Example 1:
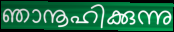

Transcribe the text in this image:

ഞാനൂഹിക്കുന്നു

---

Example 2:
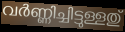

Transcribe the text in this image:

വർണ്ണിച്ചിട്ടുള്ളതു്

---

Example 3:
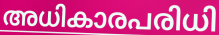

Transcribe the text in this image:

അധികാരപരിധി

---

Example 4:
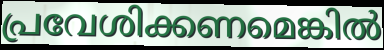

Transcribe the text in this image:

പ്രവേശിക്കണമെങ്കിൽ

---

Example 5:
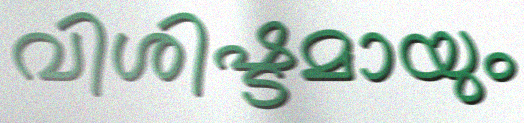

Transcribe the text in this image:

വിശിഷ്ടമായും